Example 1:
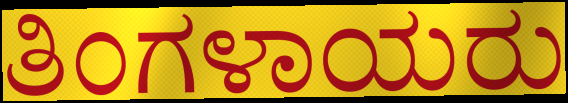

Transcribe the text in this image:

ತಿಂಗಳಾಯರು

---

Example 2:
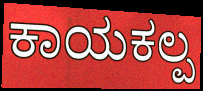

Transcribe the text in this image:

ಕಾಯಕಲ್ಪ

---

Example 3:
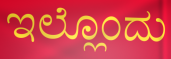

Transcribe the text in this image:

ಇಲ್ಲೊಂದು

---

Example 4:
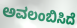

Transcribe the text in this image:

ಅವಲಂಬಿಸಿದೆ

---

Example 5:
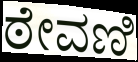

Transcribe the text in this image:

ಠೇವಣಿ